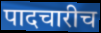
पादचारीच